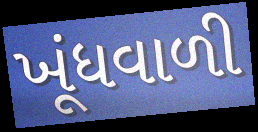
ખૂંધવાળી